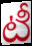
టీ